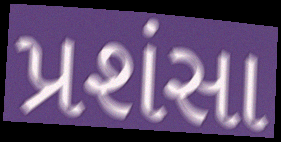
પ્રશંસા